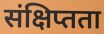
संक्षिप्तता